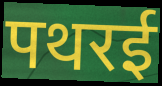
पथरई